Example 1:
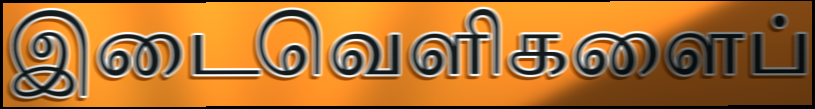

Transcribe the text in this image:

இடைவெளிகளைப்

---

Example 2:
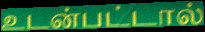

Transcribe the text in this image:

உடன்பட்டால்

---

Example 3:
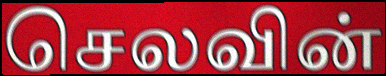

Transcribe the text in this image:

செலவின்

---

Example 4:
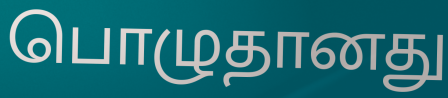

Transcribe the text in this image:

பொழுதானது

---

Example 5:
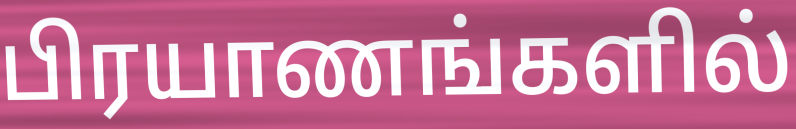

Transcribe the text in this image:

பிரயாணங்களில்